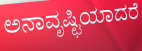
ಅನಾವೃಷ್ಟಿಯಾದರೆ